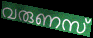
വരുണസ്